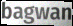
bagwan